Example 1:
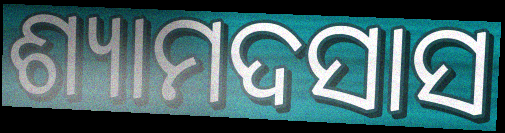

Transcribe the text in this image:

ଶ୍ୟାମଦସାସ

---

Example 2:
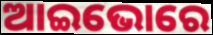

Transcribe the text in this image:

ଆଇଭୋରେ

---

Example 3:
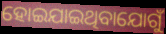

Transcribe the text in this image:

ହୋଇଯାଇଥିବାଯୋଗୁଁ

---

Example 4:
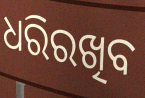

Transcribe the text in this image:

ଧରିରଖିବ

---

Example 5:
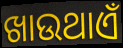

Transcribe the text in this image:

ଖାଉଥାଏଁ